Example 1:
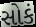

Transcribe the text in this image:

સોકં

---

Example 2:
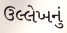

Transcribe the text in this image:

ઉલ્લેખનું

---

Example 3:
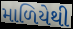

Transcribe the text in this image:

માળિયેથી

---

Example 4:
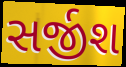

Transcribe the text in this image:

સર્જીશ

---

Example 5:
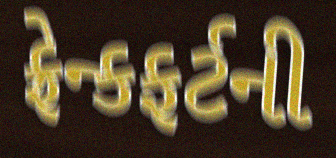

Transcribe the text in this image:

ફ્રેન્કફર્ટની